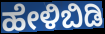
ಹೇಳಿಬಿಡಿ